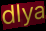
dlya